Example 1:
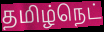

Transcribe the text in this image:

தமிழ்நெட்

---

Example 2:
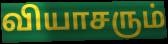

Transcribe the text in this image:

வியாசரும்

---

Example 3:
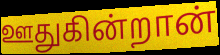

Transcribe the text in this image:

ஊதுகின்றான்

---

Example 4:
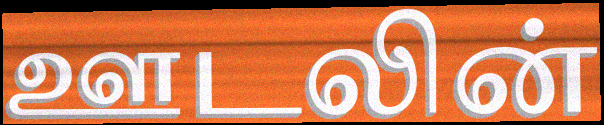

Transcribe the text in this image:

ஊடலின்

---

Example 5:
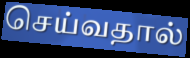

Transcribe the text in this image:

செய்வதால்